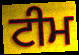
ਟੀਮ